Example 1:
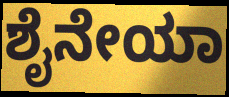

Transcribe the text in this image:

ಶೈನೇಯಾ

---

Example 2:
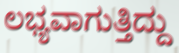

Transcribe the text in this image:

ಲಭ್ಯವಾಗುತ್ತಿದ್ದು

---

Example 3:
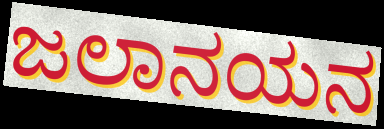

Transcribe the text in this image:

ಜಲಾನಯನ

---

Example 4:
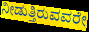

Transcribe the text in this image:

ನೀಡುತ್ತಿರುವವರೇ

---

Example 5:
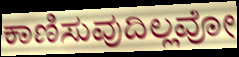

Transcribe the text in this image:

ಕಾಣಿಸುವುದಿಲ್ಲವೋ